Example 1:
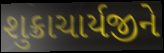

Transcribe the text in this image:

શુક્રાચાર્યજીને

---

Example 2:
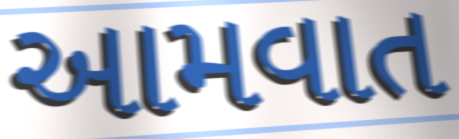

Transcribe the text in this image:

આમવાત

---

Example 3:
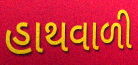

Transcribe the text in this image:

હાથવાળી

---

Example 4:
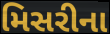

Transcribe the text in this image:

મિસરીના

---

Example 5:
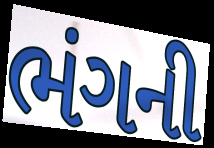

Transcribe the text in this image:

ભંગની